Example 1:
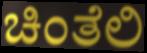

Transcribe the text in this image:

ಚಿಂತೆಲಿ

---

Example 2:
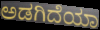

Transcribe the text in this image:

ಅಡಗಿದೆಯಾ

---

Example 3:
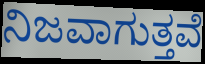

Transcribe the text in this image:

ನಿಜವಾಗುತ್ತವೆ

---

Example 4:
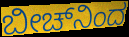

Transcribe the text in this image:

ಬೀಚ್‌ನಿಂದ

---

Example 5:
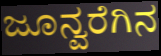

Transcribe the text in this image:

ಜೂನ್ವರೆಗಿನ